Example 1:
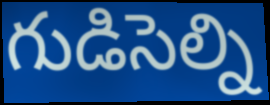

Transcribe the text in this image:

గుడిసెల్ని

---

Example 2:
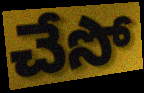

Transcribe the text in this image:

చేసో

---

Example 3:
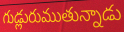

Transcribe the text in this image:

గుడ్లురుముతున్నాడు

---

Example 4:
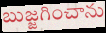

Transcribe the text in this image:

బుజ్జగించాను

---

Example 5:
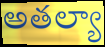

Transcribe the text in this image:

అతల్యా